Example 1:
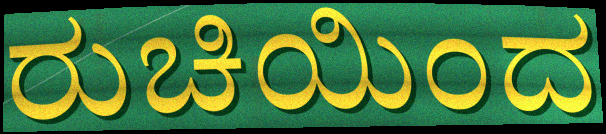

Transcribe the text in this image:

ರುಚಿಯಿಂದ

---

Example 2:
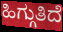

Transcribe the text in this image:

ಹಿಗ್ಗುತಿದೆ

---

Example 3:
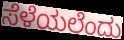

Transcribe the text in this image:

ಸೆಳೆಯಲೆಂದು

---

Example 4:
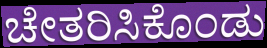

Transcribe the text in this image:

ಚೇತರಿಸಿಕೊಂಡು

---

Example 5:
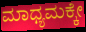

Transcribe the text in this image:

ಮಾಧ್ಯಮಕ್ಕೇ